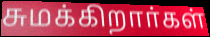
சுமக்கிறார்கள்